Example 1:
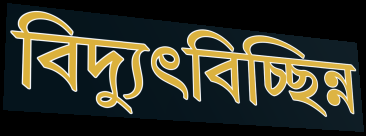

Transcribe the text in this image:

বিদ্যুৎবিচ্ছিন্ন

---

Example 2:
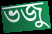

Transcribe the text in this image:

ভজু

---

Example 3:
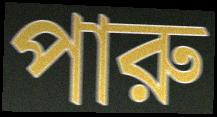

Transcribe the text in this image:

পারু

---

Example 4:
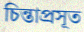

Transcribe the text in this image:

চিন্তাপ্রসূত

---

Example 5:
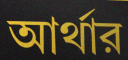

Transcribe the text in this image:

আর্থার